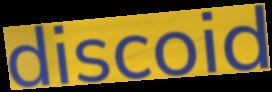
discoid